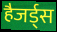
हैजर्ड्स